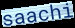
saachi